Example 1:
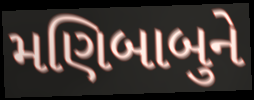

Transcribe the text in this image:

મણિબાબુને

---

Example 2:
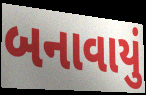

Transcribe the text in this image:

બનાવાયું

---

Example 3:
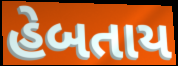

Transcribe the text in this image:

હેબતાય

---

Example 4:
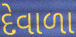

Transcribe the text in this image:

દેવાળા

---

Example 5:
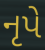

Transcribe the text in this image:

નૃપે